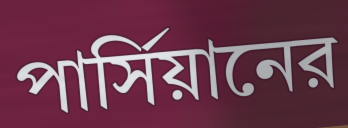
পার্সিয়ানের